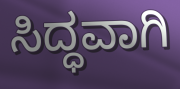
ಸಿದ್ಧವಾಗಿ